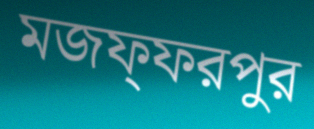
মজফ্ফরপুর